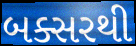
બક્સરથી